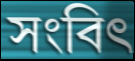
সংবিৎ